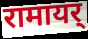
रामायर्